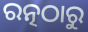
ରତ୍ନଠାରୁ